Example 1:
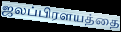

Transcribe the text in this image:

ஜலப்பிரளயத்தை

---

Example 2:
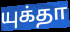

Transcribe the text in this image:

யுக்தா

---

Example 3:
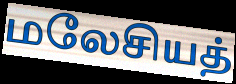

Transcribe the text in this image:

மலேசியத்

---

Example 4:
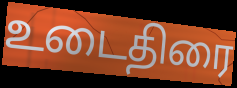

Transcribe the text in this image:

உடைதிரை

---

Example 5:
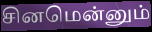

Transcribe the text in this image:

சினமென்னும்